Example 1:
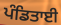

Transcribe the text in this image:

ਪੰਡਿਤਾਈ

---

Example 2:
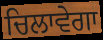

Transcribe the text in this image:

ਚਿਲਾਵੇਗਾ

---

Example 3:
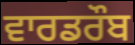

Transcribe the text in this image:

ਵਾਰਡਰੌਬ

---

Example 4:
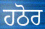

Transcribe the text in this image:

ਹਠੋਰ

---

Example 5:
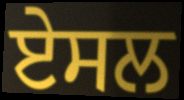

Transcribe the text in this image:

ਏਸਲ